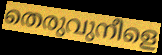
തെരുവുനീളെ